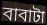
বাবাটা